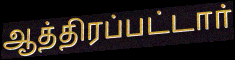
ஆத்திரப்பட்டார்